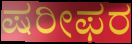
ಷರೀಫರ